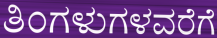
ತಿಂಗಳುಗಳವರೆಗೆ